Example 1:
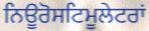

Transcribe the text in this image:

ਨਿਊਰੋਸਟਿਮੂਲੇਟਰਾਂ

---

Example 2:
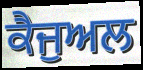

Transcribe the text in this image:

ਕੈਜੁਅਲ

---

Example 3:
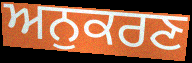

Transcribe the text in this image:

ਅਨੁਕਰਣ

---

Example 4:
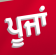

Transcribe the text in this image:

ਪੂਜਾਂ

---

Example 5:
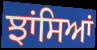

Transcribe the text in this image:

ਝਾਂਸਿਆਂ